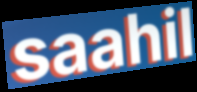
saahil